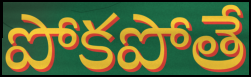
పోకపోతే